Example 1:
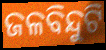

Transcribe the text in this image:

ଜଳବିନ୍ଦୁଟି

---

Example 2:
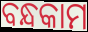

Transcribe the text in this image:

ବନ୍ଧକାମ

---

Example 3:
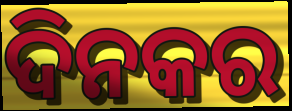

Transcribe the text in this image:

ଦିନକର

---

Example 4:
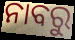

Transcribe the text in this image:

ନାବରୁ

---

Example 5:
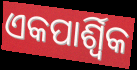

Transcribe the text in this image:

ଏକପାର୍ଶ୍ୱିକ